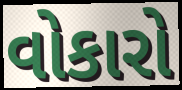
વોકારો